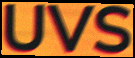
UVS